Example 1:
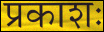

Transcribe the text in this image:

प्रकाशः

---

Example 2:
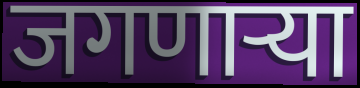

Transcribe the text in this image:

जगणार्‍या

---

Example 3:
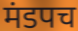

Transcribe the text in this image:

मंडपच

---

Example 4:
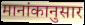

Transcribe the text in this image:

मानांकानुसार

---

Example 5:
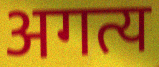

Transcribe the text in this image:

अगत्य